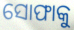
ସୋଫାକୁ